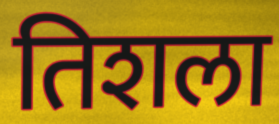
तिशला